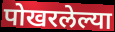
पोखरलेल्या